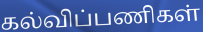
கல்விப்பணிகள்